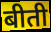
बीती